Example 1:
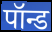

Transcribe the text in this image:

पॉन्ड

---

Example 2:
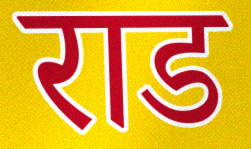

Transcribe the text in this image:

राड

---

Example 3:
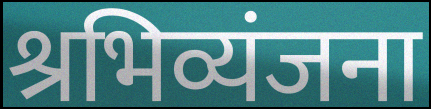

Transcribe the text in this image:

श्रभिव्यंजना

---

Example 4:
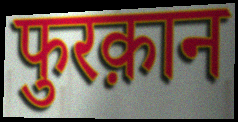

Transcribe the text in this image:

फुरक़ान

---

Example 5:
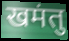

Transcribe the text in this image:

खमंतु